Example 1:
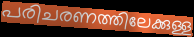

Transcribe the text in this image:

പരിചരണത്തിലേക്കുള്ള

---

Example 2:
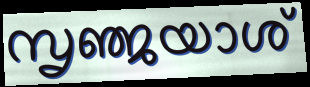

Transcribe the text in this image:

സൃഞ്ജയാശ്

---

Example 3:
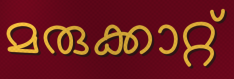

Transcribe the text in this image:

മരുക്കാറ്റ്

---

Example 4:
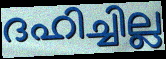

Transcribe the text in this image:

ദഹിച്ചില്ല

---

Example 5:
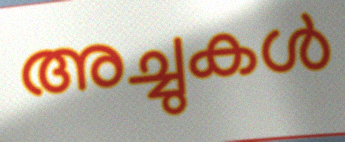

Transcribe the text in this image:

അച്ചുകൾ